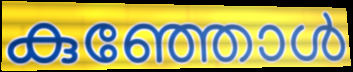
കുഞ്ഞോൾ